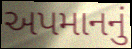
અપમાનનું